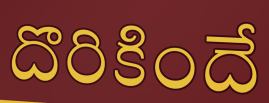
దొరికిందే